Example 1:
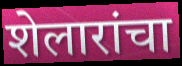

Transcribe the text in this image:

शेलारांचा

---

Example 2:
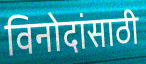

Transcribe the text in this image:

विनोदांसाठी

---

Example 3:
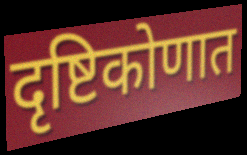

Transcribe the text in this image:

दृष्टिकोणात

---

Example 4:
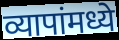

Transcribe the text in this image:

व्यापांमध्ये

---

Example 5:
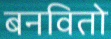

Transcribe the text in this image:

बनवितो